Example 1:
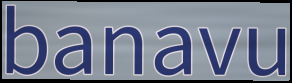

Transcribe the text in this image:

banavu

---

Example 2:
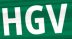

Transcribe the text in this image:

HGV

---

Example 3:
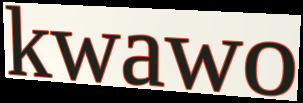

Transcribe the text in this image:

kwawo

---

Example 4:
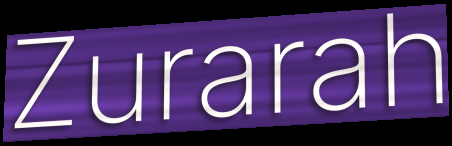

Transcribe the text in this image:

Zurarah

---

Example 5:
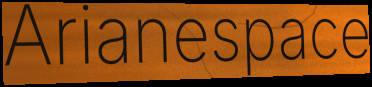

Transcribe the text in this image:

Arianespace